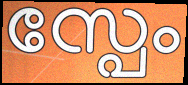
സ്പേം